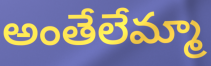
అంతేలేమ్మా